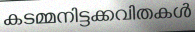
കടമ്മനിട്ടക്കവിതകൾ